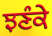
ਝਣੰਕੇ